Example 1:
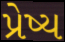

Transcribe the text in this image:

પ્રેષ્ય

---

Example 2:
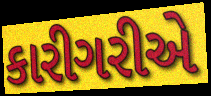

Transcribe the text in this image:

કારીગરીએ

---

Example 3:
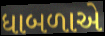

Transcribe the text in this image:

ધાબળાએ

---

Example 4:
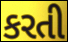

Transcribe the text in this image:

કરતી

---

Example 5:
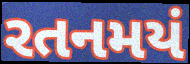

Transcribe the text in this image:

રતનમયં